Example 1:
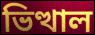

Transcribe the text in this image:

ভিত্থাল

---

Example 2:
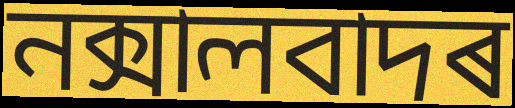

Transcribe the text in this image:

নক্সালবাদৰ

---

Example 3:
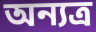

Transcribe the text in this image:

অন্যত্ৰ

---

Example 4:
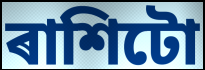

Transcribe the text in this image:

ৰাশিটো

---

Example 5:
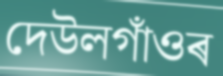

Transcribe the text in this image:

দেউলগাঁওৰ